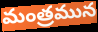
మంత్రమున